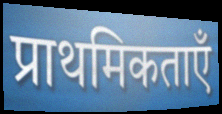
प्राथमिकताएँ